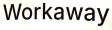
Workaway